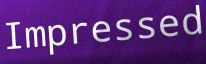
Impressed